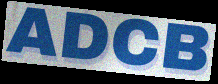
ADCB